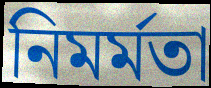
নিমর্মতা